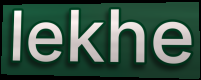
lekhe